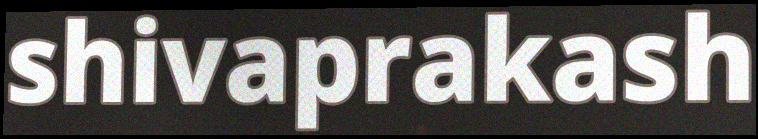
shivaprakash